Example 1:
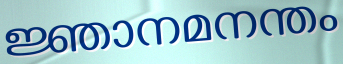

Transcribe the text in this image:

ജ്ഞാനമനന്തം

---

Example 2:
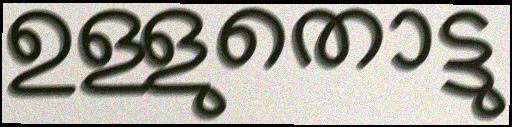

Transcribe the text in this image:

ഉള്ളുതൊട്ടു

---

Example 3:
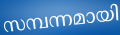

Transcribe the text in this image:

സമ്പന്നമായി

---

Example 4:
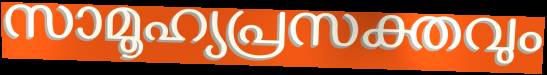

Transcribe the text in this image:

സാമൂഹ്യപ്രസക്തവും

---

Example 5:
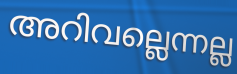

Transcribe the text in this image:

അറിവല്ലെന്നല്ല